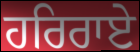
ਹਰਿਰਾਏ